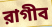
রাগীব